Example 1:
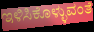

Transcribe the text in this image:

ಇಳಿಸಿಕೊಳ್ಳುವಂತೆ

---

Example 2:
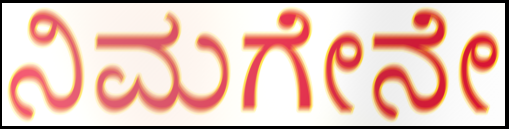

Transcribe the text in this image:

ನಿಮಗೇನೇ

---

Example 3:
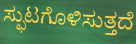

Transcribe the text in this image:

ಸ್ಫುಟಗೊಳಿಸುತ್ತದೆ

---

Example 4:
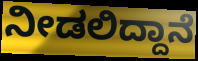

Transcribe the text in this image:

ನೀಡಲಿದ್ದಾನೆ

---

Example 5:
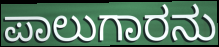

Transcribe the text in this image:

ಪಾಲುಗಾರನು